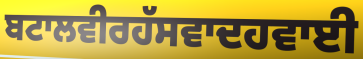
ਬਟਾਲਵੀਰਹੱਸਵਾਦਹਵਾਈ